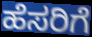
ಹೆಸರಿಗೆ